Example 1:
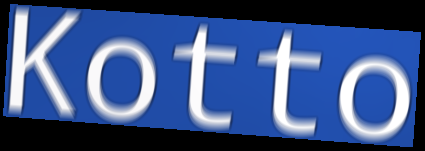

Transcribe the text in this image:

Kotto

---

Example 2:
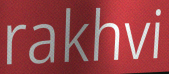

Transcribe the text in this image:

rakhvi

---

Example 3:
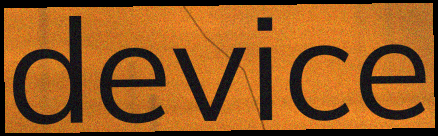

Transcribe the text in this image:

device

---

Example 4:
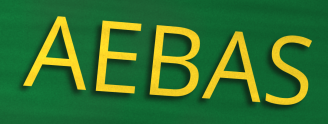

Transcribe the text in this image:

AEBAS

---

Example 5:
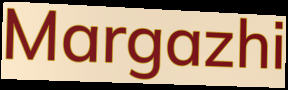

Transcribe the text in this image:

Margazhi